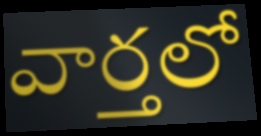
వార్తలో